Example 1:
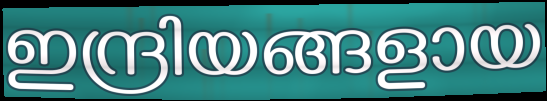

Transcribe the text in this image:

ഇന്ദ്രിയങ്ങളായ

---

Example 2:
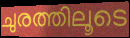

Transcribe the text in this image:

ചുരത്തിലൂടെ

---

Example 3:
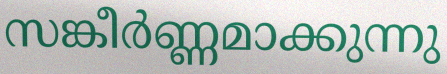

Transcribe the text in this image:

സങ്കീർണ്ണമാക്കുന്നു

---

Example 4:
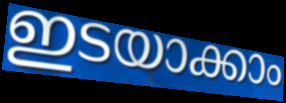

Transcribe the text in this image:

ഇടയാക്കാം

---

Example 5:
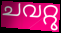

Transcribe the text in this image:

ചവറ്റു